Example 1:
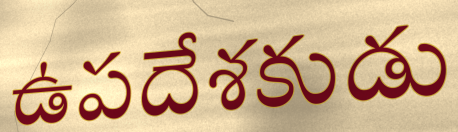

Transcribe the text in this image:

ఉపదేశకుడు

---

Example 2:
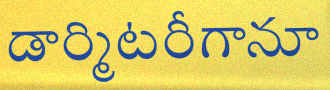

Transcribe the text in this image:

డార్మిటరీగానూ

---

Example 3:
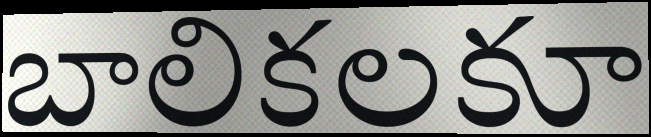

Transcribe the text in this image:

బాలికలకూ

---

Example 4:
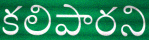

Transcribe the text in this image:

కలిపారని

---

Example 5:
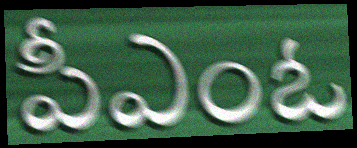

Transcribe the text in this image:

పీఎంఓ